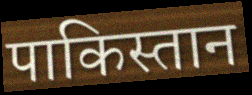
पाकिस्तान